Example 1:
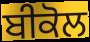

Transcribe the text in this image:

ਬੀਕੋਲ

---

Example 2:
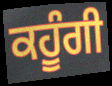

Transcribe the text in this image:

ਕਹੂੰਗੀ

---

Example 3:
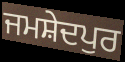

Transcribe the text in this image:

ਜਮਸ਼ੇਦਪੁਰ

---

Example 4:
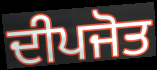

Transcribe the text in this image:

ਦੀਪਜੋਤ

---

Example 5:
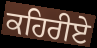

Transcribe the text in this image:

ਕਹਿਰੀਏ